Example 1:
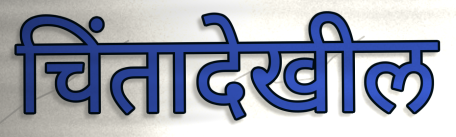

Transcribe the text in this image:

चिंतादेखील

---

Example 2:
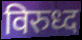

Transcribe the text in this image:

विरुध्द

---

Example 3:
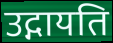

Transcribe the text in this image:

उद्गायति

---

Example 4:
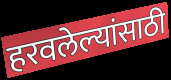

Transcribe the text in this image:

हरवलेल्यांसाठी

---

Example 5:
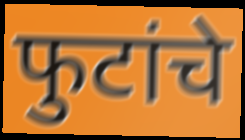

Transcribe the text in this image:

फुटांचे